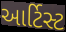
આર્ટિસ્ટ